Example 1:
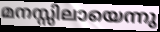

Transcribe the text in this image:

മനസ്സിലായെന്നു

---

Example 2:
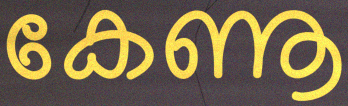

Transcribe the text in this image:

കേണൂ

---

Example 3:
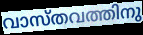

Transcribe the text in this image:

വാസ്തവത്തിനു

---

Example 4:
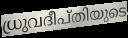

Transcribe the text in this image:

ധ്രുവദീപ്തിയുടെ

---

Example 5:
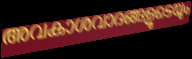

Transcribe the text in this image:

അവകാശവാദങ്ങളുടെയും